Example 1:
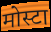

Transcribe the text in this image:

मोस्टा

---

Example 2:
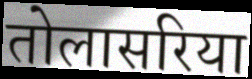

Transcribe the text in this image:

तोलासरिया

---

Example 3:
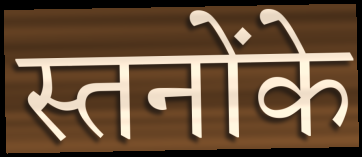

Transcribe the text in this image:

स्तनोंके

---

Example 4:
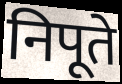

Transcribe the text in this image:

निपूते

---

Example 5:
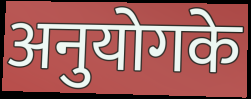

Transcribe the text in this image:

अनुयोगके